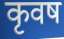
कृवष